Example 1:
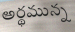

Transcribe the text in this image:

అర్థమున్న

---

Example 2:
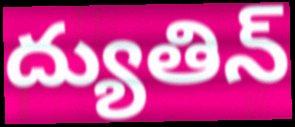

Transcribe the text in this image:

ద్యుతిన్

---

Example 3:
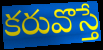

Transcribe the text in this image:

కరువొస్తే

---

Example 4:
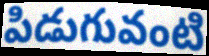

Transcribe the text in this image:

పిడుగువంటి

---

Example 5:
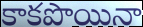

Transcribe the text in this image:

కాకపొయినా